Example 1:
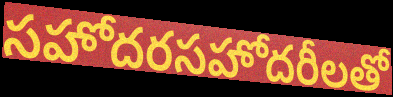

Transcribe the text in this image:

సహోదరసహోదరీలతో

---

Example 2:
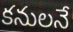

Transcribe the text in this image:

కనులనే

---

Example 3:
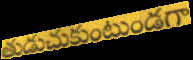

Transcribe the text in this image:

తుడుచుకుంటుండగా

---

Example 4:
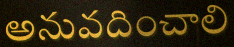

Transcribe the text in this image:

అనువదించాలి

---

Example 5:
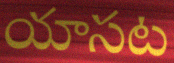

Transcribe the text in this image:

యాసట